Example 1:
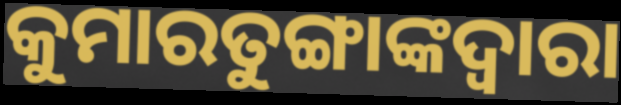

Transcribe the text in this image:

କୁମାରତୁଙ୍ଗାଙ୍କଦ୍ୱାରା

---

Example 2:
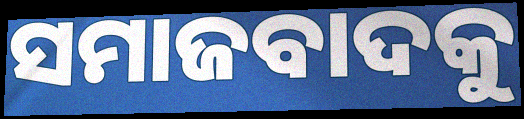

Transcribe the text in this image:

ସମାଜବାଦକୁ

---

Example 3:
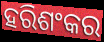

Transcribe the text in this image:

ହରିଶଂକର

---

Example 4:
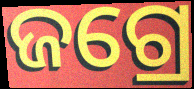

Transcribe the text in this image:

ଜଗ୍ରେ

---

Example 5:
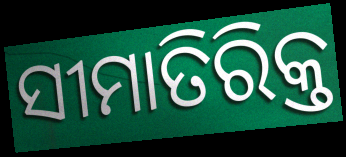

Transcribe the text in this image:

ସୀମାତିରିକ୍ତ